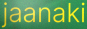
jaanaki